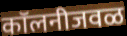
कॉलनीजवळ